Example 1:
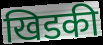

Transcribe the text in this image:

खिडकी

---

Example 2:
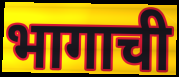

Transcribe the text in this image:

भागाची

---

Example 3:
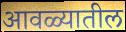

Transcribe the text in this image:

आवळ्यातील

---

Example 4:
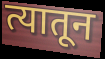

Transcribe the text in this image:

त्यातून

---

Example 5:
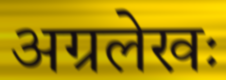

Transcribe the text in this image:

अग्रलेखः